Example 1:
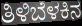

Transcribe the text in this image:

ತಿಳಿಬೆಳಕಿನ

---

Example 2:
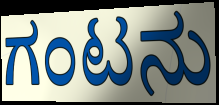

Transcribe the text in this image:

ಗಂಟನು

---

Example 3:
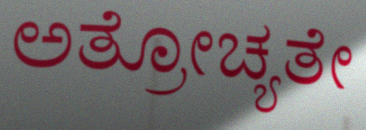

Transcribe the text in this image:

ಅತ್ರೋಚ್ಯತೇ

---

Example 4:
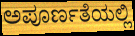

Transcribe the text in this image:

ಅಪೂರ್ಣತೆಯಲ್ಲಿ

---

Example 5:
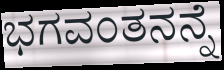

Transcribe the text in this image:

ಭಗವಂತನನ್ನೆ